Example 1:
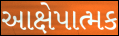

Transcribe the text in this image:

આક્ષેપાત્મક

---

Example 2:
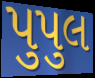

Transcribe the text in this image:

પુપુલ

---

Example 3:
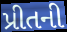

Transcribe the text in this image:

પ્રીતની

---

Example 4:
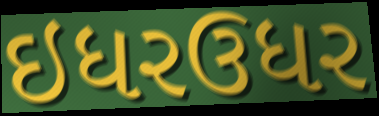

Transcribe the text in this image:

ઇધરઉધર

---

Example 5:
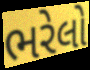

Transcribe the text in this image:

ભરેલો